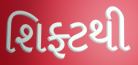
શિફ્ટથી